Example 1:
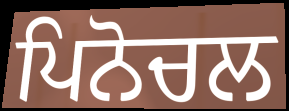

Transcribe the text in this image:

ਪਿਨੋਚਲ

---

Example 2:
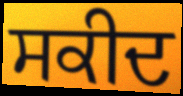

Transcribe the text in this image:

ਸਕੀਦ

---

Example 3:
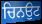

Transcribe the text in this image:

ਚਿਨਉਟ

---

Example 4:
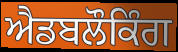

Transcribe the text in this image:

ਐਡਬਲੌਕਿੰਗ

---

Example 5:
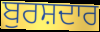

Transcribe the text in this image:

ਬੁਰਸ਼ਦਾਰ